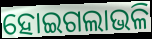
ହୋଇଗଲାଭଳି